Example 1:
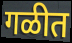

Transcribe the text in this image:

गळीत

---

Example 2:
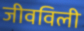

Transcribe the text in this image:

जीवविली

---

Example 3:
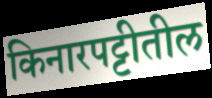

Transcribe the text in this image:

किनारपट्टीतील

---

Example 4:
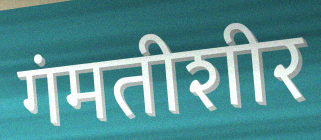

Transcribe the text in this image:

गंमतीशीर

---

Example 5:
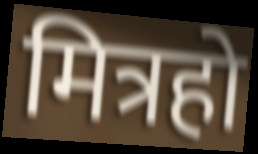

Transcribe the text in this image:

मित्रहो